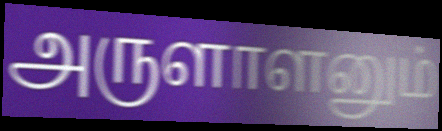
அருளாளனும்